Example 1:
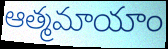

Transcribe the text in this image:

ఆత్మమాయాం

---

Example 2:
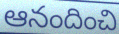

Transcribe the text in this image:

ఆనందించి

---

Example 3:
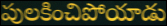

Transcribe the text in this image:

పులకించిపోయాడు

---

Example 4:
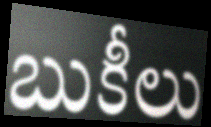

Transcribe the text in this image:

బుకీలు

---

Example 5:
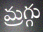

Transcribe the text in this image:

మ్రగ్గు